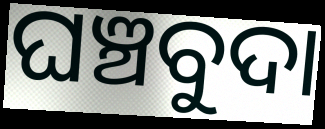
ଘଞ୍ଚବୁଦା